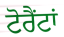
ਟੋਰੈਂਟਾਂ